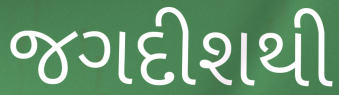
જગદીશથી